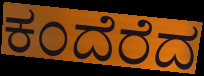
ಕಂದೆರೆದ